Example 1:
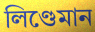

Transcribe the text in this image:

লিণ্ডেমান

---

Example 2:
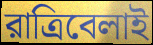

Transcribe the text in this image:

রাত্রিবেলাই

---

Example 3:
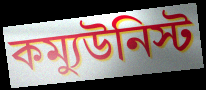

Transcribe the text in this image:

কম্যুউনিস্ট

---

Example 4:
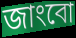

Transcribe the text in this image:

জাংবো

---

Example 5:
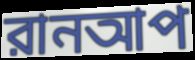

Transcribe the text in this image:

রানআপ